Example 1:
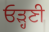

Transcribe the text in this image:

ਓੜ੍ਹਣੀ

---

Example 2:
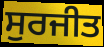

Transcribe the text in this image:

ਸੁਰਜੀਤ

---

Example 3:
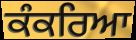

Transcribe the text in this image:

ਕੰਕਰਿਆ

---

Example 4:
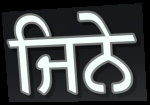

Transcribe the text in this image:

ਜਿਨੇ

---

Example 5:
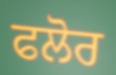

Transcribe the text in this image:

ਫਲੋਰ